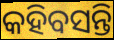
କହିବସନ୍ତି